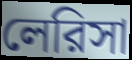
লেরিসা